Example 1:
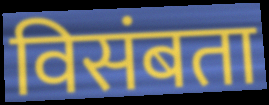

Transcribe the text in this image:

विसंबता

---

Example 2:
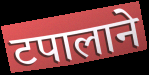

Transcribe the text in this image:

टपालाने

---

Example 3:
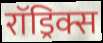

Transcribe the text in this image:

रॉड्रिक्स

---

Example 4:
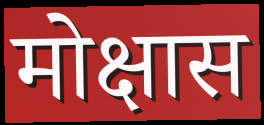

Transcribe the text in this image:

मोक्षास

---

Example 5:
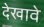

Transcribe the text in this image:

देखावे